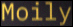
Moily